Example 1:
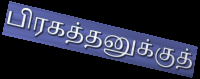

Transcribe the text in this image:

பிரகத்தனுக்குத்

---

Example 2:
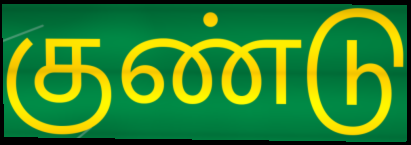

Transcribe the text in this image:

குண்டு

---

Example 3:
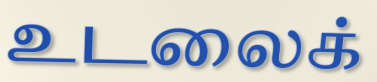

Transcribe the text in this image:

உடலைக்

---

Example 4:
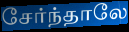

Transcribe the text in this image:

சேர்ந்தாலே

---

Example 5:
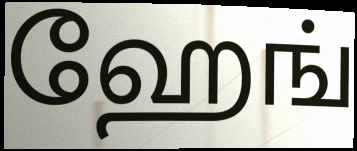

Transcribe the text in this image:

ஹேங்